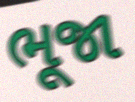
ભૂજા